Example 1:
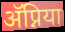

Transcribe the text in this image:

ॲप्निया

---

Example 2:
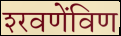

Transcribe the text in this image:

श्रवणेंविण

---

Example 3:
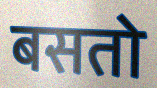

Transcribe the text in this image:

बसतो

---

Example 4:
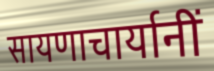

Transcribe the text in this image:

सायणाचार्यानीं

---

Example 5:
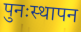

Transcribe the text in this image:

पुनःस्थापन